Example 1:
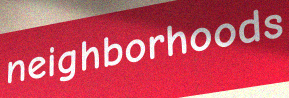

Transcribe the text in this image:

neighborhoods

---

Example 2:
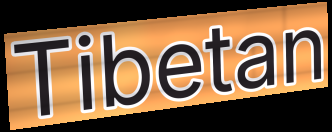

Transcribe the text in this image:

Tibetan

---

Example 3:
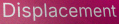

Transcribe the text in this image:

Displacement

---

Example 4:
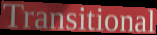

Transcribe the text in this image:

Transitional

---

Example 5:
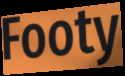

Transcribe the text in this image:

Footy